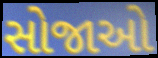
સોજાઓ